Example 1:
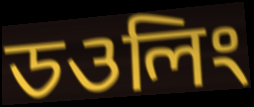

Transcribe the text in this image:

ডওলিং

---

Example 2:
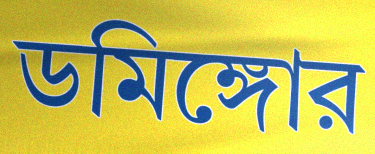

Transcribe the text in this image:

ডমিঙ্গোর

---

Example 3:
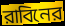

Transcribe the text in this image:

রাবিনের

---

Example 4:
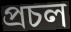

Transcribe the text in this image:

প্রচল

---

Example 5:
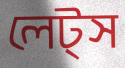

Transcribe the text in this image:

লেট্‌স